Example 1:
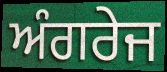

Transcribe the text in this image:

ਅੰਗਰੇਜ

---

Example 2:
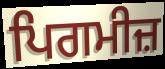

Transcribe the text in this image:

ਪਿਗਮੀਜ਼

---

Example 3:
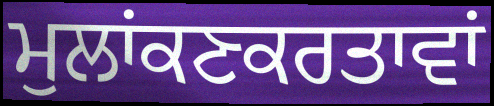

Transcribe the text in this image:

ਮੁਲਾਂਕਣਕਰਤਾਵਾਂ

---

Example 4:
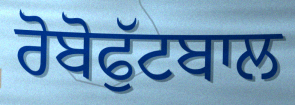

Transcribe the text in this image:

ਰੋਬੋਫੁੱਟਬਾਲ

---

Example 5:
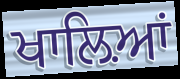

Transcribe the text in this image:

ਖਾਲ਼ਿਆਂ